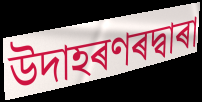
উদাহৰণৰদ্বাৰা